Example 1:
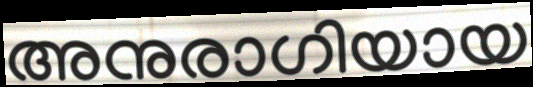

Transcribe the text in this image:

അനുരാഗിയായ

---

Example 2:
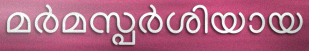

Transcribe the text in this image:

മർമസ്പർശിയായ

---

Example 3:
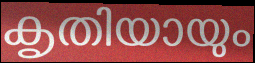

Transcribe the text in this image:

കൃതിയായും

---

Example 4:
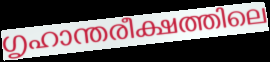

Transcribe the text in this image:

ഗൃഹാന്തരീക്ഷത്തിലെ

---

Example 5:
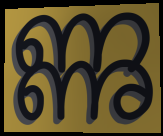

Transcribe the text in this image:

ണ്ണു